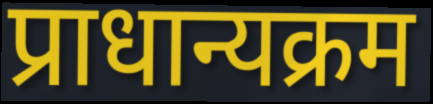
प्राधान्यक्रम